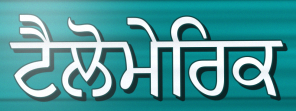
ਟੈਲੋਮੇਰਿਕ